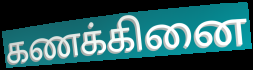
கணக்கினை